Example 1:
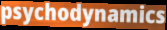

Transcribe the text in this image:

psychodynamics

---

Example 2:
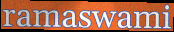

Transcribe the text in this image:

ramaswami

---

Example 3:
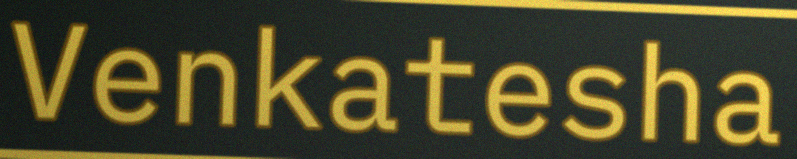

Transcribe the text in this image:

Venkatesha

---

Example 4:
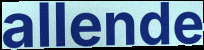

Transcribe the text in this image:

allende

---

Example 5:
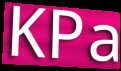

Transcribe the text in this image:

KPa